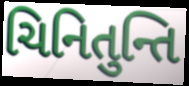
ચિનિતુન્તિ